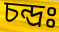
চন্দ্রঃ